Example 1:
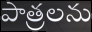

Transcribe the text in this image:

పాత్రలను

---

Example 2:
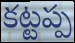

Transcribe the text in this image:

కట్టప్ప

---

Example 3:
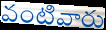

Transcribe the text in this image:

వంటివారు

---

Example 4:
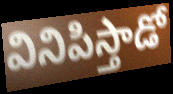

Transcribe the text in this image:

వినిపిస్తాడో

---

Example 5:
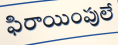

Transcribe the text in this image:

ఫిరాయింపులే